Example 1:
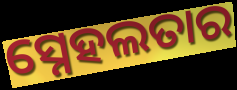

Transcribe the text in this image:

ସ୍ନେହଲତାର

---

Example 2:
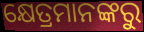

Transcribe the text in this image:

କ୍ଷେତ୍ରମାନଙ୍କରୁ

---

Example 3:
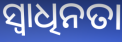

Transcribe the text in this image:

ସ୍ୱାଧିନତା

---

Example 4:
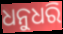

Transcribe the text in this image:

ଧନୁଧରି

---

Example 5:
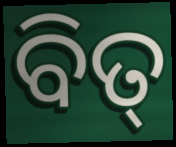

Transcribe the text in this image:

ବିତ୍